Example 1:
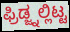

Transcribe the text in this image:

ಫ್ರಿಡ್ಜ್ನಲ್ಲಿಟ್ಟ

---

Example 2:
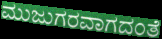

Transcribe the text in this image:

ಮುಜುಗರವಾಗದಂತೆ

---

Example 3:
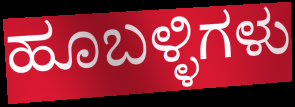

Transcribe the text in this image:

ಹೂಬಳ್ಳಿಗಳು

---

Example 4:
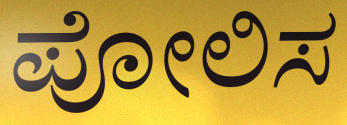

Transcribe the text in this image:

ಪೋಲಿಸ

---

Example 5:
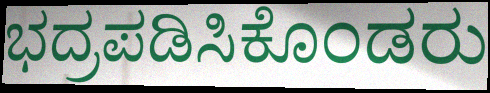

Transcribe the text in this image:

ಭದ್ರಪಡಿಸಿಕೊಂಡರು